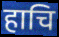
हाचि